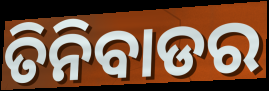
ତିନିବାଡର